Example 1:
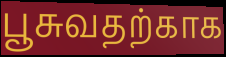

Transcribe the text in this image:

பூசுவதற்காக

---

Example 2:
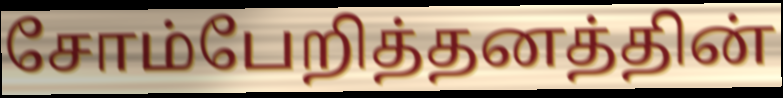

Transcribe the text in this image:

சோம்பேறித்தனத்தின்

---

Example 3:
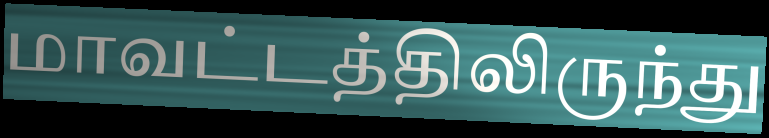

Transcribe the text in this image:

மாவட்டத்திலிருந்து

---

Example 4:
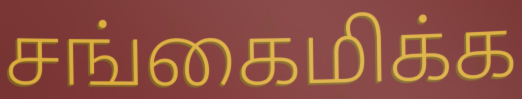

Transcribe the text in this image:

சங்கைமிக்க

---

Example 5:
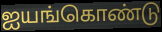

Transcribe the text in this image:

ஐயங்கொண்டு